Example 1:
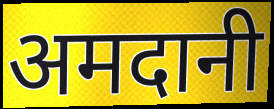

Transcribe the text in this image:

अमदानी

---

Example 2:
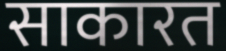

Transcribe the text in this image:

साकारत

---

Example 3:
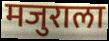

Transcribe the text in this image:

मजुराला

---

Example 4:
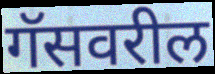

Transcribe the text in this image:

गॅसवरील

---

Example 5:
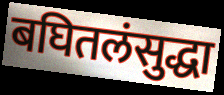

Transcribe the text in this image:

बघितलंसुद्धा